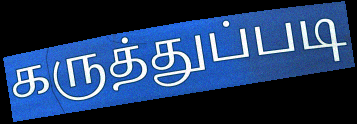
கருத்துப்படி